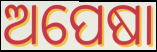
ଅପେଷା